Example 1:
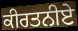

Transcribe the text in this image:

ਕੀਰਤਨੀਏ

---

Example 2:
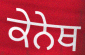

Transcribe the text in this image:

ਕੇਨੇਥ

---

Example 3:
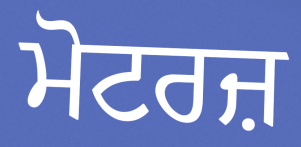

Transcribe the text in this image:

ਮੋਟਰਜ਼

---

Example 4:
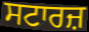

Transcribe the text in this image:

ਸਟਾਰਜ਼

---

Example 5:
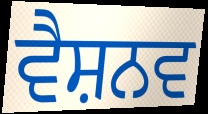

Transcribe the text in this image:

ਵੈਸ਼ਨਵ